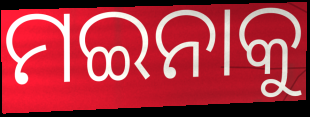
ମଇନାକୁ